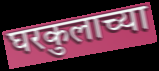
घरकुलाच्या